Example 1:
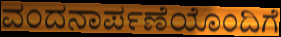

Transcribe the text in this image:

ವಂದನಾರ್ಪಣೆಯೊಂದಿಗೆ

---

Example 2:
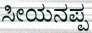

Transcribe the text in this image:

ಸೀಯನಪ್ಪ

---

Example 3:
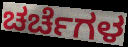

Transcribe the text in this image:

ಚರ್ಚೆಗಳ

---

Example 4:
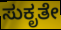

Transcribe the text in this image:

ಸುಕೃತೇ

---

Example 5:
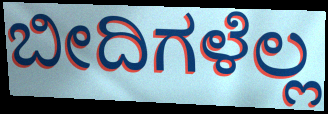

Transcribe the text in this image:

ಬೀದಿಗಳೆಲ್ಲ